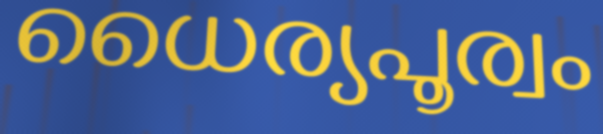
ധൈര്യപൂര്വം